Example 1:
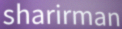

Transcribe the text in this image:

sharirman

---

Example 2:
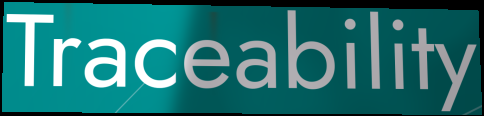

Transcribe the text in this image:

Traceability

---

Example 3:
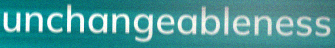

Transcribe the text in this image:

unchangeableness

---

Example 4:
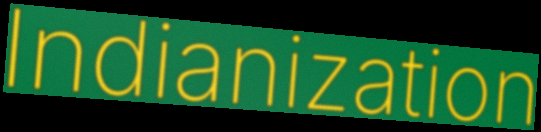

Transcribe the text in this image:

Indianization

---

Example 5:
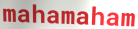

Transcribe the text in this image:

mahamaham